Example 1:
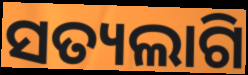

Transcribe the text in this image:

ସତ୍ୟଲାଗି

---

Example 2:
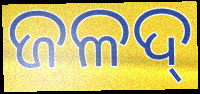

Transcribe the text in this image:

ଜଳଦ୍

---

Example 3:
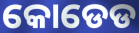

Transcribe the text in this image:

କୋଡେଡ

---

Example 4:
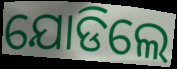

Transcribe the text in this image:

ଯୋଡିଲେ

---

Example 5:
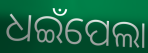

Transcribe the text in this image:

ଧଇଁପେଲା